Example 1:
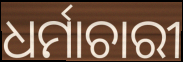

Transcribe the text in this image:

ଧର୍ମାଚାରୀ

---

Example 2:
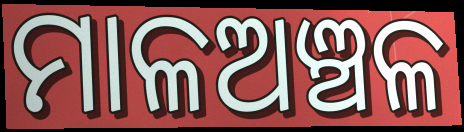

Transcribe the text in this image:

ମାଳଅଞ୍ଚଳ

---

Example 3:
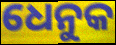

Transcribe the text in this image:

ଧେନୁକ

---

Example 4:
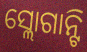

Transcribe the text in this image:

ସ୍ଲୋଗାନ୍ଟି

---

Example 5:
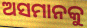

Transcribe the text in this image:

ଅସମାନକୁ